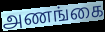
அணங்கை